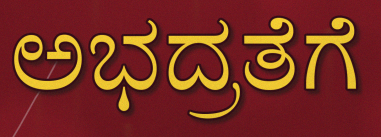
ಅಭದ್ರತೆಗೆ